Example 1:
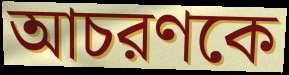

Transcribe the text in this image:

আচরণকে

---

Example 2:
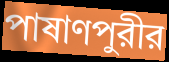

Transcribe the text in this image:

পাষাণপুরীর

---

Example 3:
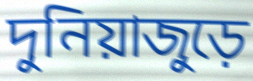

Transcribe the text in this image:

দুনিয়াজুড়ে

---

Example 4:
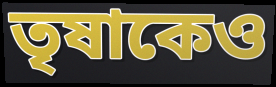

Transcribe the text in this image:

তৃষাকেও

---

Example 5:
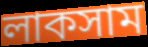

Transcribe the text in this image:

লাকসাম